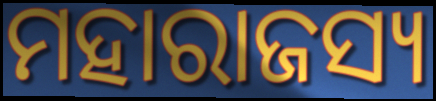
ମହାରାଜସ୍ୟ